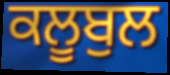
ਕਲੂਬੁਲ